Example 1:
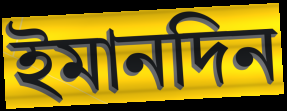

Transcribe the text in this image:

ইমানদিন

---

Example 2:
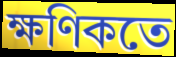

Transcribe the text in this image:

ক্ষণিকতে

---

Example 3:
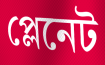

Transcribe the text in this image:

প্লেনেট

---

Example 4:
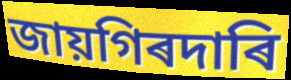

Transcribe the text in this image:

জায়গিৰদাৰি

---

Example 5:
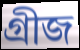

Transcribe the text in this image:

গ্ৰীজ